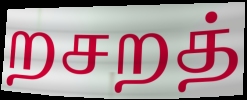
றசறத்